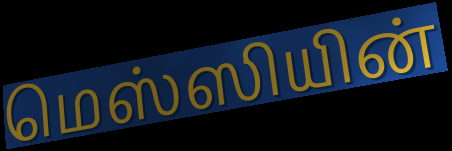
மெஸ்ஸியின்